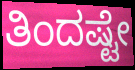
ತಿಂದಷ್ಟೇ